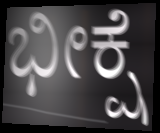
ಭೀಕ್ಷೆ